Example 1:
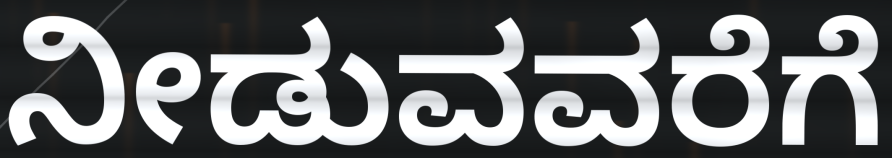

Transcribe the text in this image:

ನೀಡುವವರೆಗೆ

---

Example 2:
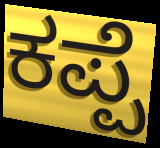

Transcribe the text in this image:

ಕಪ್ಪೆ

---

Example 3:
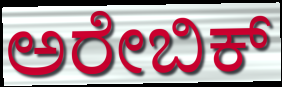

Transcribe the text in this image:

ಅರೇಬಿಕ್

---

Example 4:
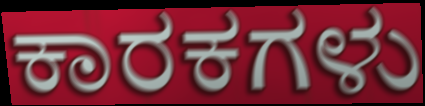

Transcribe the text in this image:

ಕಾರಕಗಳು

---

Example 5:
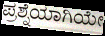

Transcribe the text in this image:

ಪ್ರಶ್ನೆಯಾಗಿಯೇ